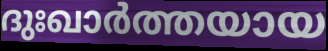
ദുഃഖാർത്തയായ